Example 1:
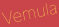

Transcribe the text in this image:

Vemula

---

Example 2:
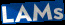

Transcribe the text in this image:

LAMs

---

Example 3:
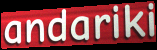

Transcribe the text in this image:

andariki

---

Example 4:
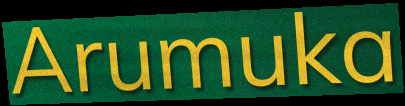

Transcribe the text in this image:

Arumuka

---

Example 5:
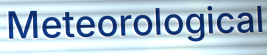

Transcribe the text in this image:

Meteorological